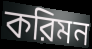
করিমন